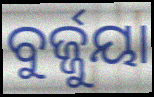
ବୁର୍ଜ୍ଜୁୟା